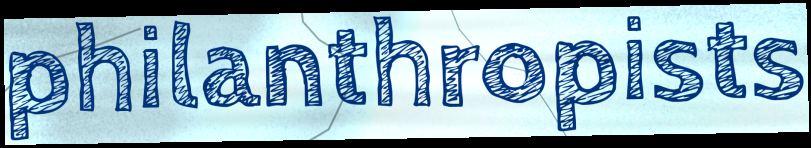
philanthropists